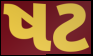
ષટ